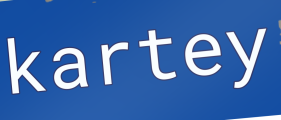
kartey